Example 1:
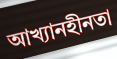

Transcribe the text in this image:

আখ্যানহীনতা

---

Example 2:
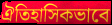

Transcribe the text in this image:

ঐতিহাসিকভাবে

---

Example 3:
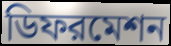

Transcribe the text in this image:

ডিফরমেশন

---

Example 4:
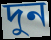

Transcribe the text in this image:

দুন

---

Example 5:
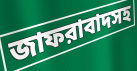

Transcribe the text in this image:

জাফরাবাদসহ